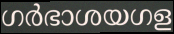
ഗർഭാശയഗള